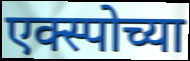
एक्स्पोच्या